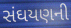
સંઘયણની